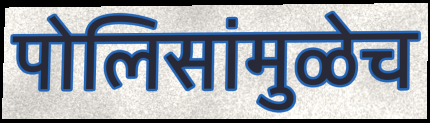
पोलिसांमुळेच